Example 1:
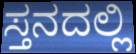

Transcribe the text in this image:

ಸ್ತನದಲ್ಲಿ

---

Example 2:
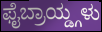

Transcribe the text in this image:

ಫೈಬ್ರಾಯ್ಡ್ಗಳು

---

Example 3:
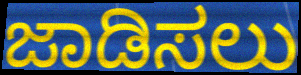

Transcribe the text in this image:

ಜಾಡಿಸಲು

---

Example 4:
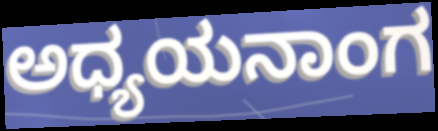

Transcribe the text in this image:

ಅಧ್ಯಯನಾಂಗ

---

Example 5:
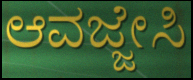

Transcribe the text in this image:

ಆವಜ್ಜೇಸಿ